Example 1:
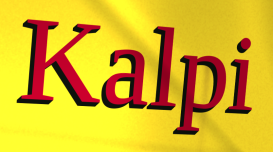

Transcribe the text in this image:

Kalpi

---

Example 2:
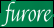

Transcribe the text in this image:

furore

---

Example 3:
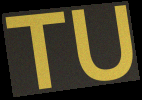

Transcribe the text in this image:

TU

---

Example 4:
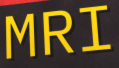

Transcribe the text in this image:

MRI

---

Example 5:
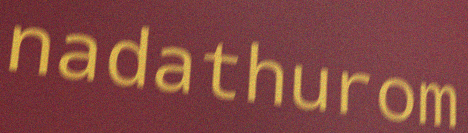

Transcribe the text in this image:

nadathurom